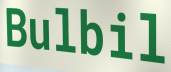
Bulbil